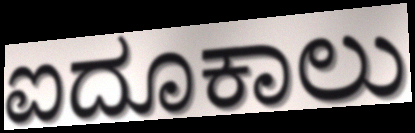
ಐದೂಕಾಲು